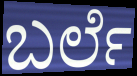
ಬರ್ಲೆ